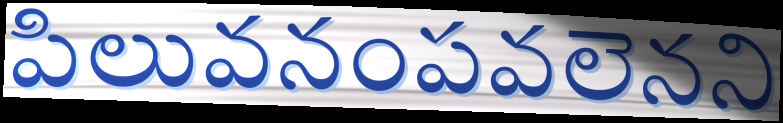
పిలువనంపవలెనని